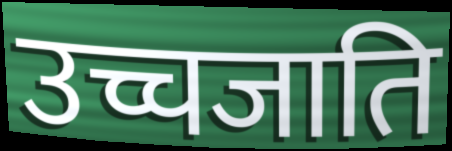
उच्चजाति